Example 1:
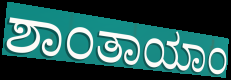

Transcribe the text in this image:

ಶಾಂತಾಯಾಂ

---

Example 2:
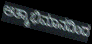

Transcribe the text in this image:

ಆತ್ಮಾಭಿಮಾನದಿಂದ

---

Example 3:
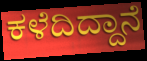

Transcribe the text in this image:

ಕಳೆದಿದ್ದಾನೆ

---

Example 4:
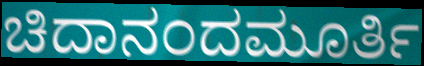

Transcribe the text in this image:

ಚಿದಾನಂದಮೂರ್ತಿ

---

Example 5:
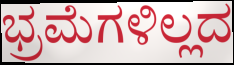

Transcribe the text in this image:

ಭ್ರಮೆಗಳಿಲ್ಲದ